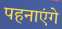
पहनाएंगे